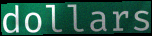
dollars